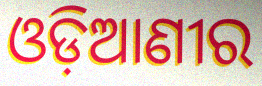
ଓଡ଼ିଆଣୀର